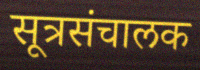
सूत्रसंचालक